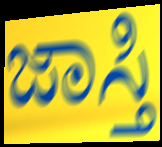
ಜಾಸ್ತಿ